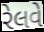
રેલવે